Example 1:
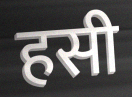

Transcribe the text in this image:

हसी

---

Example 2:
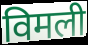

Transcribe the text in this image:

विमली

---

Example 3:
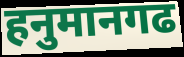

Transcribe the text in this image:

हनुमानगढ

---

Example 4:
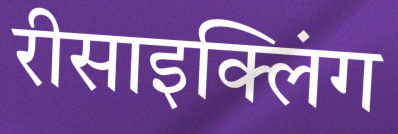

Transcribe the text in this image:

रीसाइक्लिंग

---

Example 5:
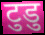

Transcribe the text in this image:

टुडु